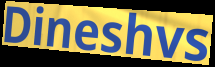
Dineshvs